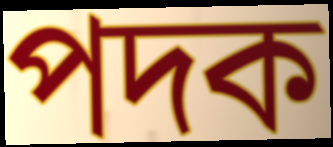
পদক